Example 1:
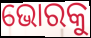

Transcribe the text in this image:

ଭୋରକୁ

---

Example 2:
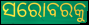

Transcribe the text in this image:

ସରୋବରକୁ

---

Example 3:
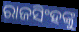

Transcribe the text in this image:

ରାଜସିଂହଙ୍କୁ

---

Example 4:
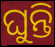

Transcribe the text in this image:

ଘୁନ୍ତି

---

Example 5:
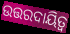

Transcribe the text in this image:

ଉତ୍ତରଦାୟିତ୍ଵ